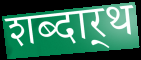
शब्दार्थ